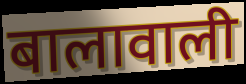
बालावाली